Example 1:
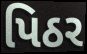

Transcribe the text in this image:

પિઠર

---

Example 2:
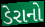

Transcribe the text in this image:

ડેરાનો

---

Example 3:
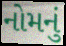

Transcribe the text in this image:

નોમનું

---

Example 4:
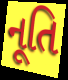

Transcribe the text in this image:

નૂતિ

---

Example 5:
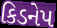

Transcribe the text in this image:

કિડનેપ